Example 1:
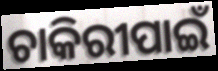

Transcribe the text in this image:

ଚାକିରୀପାଇଁ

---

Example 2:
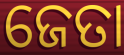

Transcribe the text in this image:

ଜେତା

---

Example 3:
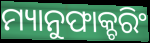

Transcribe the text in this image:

ମ୍ୟାନୁଫାକ୍ଚରିଂ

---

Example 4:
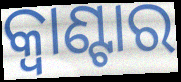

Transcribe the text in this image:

କ୍ୱାଣ୍ଟାର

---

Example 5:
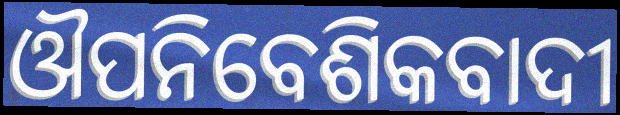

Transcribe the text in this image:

ଔପନିବେଶିକବାଦୀ